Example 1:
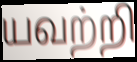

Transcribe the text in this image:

யவற்றி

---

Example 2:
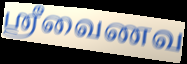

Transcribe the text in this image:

ஸ்ரீவைணவ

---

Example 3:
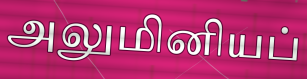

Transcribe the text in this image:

அலுமினியப்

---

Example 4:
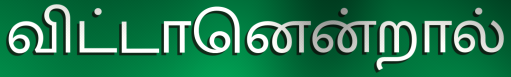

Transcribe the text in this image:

விட்டானென்றால்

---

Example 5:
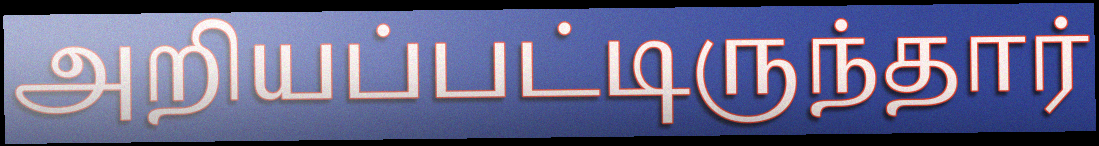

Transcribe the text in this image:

அறியப்பட்டிருந்தார்